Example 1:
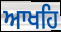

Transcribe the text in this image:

ਆਖਹਿ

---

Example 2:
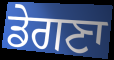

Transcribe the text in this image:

ਡੇਗਣਾ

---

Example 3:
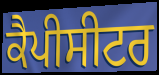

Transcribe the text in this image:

ਕੈਪੀਸੀਟਰ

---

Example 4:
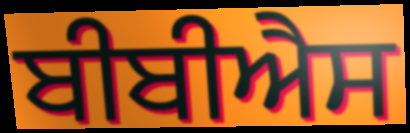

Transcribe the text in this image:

ਬੀਬੀਐਸ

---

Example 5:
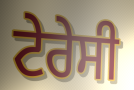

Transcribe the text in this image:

ਟੇਰੇਸੀ